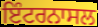
ਇੰਟਰਨਾਸਲ